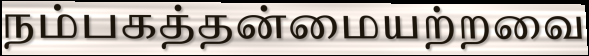
நம்பகத்தன்மையற்றவை